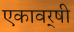
एकावर्षी